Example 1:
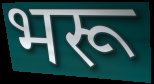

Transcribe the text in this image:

भरू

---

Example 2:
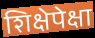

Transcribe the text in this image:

शिक्षेपेक्षा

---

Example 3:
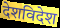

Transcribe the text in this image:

देशविदेश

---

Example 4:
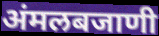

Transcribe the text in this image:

अंमलबजाणी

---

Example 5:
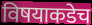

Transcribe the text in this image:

विषयाकडेच